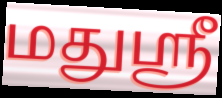
மதுஸ்ரீ